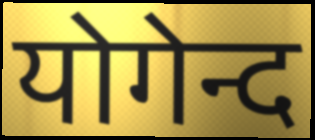
योगेन्द